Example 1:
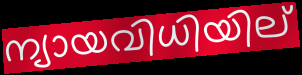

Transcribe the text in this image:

ന്യായവിധിയില്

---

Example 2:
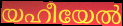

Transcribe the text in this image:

യഹീയേൽ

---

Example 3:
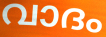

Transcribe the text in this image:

വാദം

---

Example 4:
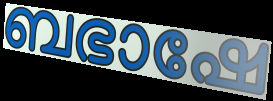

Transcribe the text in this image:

ബഭാഷേ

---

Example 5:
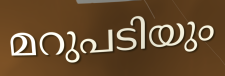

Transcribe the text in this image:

മറുപടിയും